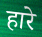
हारे